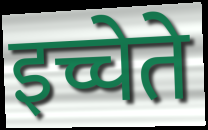
इच्चेते